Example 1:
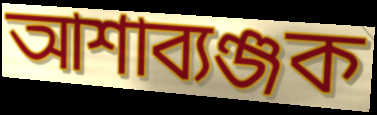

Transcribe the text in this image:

আশাব্যঞ্জক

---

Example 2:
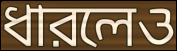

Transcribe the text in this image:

ধারলেও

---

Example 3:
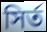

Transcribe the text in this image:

সির্ত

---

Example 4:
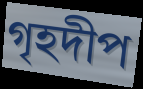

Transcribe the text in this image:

গৃহদীপ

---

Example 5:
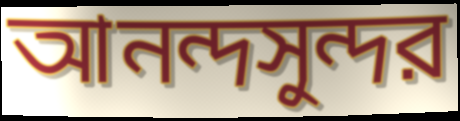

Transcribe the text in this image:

আনন্দসুন্দর